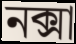
নক্সা